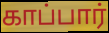
காப்பார்